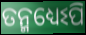
ତନ୍ମଧ୍ୟେଽପି